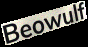
Beowulf